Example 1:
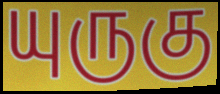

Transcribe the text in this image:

யுருகு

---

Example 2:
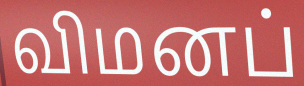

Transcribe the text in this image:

விமனப்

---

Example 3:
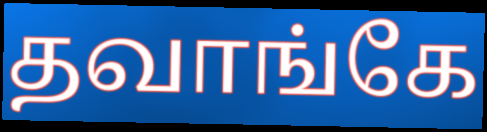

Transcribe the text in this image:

தவாங்கே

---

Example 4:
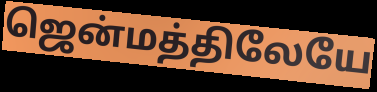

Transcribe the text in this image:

ஜென்மத்திலேயே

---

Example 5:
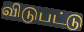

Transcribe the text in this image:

விடுபட்டு